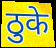
ठुके